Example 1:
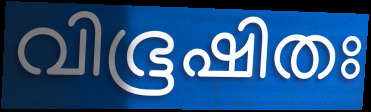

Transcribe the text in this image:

വിഭൂഷിതഃ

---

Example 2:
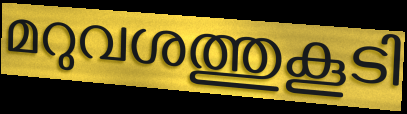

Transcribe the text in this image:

മറുവശത്തുകൂടി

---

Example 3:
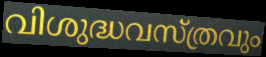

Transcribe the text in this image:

വിശുദ്ധവസ്ത്രവും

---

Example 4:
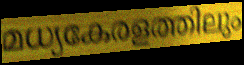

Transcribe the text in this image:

മധ്യകേരളത്തിലും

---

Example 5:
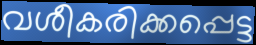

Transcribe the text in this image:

വശീകരിക്കപ്പെട്ട